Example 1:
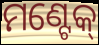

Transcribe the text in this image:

ମଣ୍ଟେକ୍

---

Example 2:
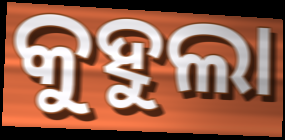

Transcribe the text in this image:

କୁହୁଲା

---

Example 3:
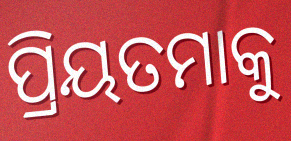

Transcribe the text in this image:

ପ୍ରିୟତମାକୁ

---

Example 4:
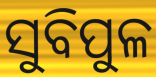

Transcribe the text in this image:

ସୁବିପୁଳ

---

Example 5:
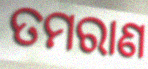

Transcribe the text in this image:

ତମରାଣ